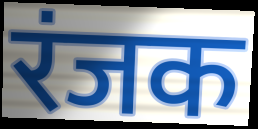
रंजक